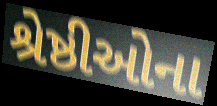
શ્રેષ્ઠીઓના